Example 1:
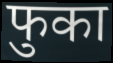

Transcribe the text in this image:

फुका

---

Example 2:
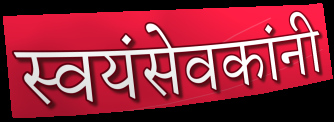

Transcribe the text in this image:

स्वयंसेवकांनी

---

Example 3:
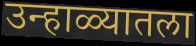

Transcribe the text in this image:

उन्हाळ्यातला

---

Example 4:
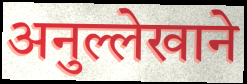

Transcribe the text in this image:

अनुल्लेखाने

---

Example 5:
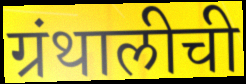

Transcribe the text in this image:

ग्रंथालीची